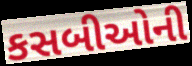
કસબીઓની